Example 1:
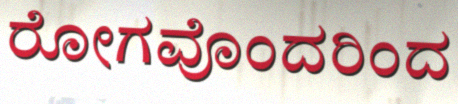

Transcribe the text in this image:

ರೋಗವೊಂದರಿಂದ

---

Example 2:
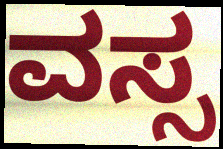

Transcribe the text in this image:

ವಸ್ಸ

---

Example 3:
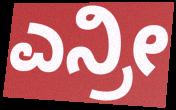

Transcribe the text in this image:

ಎನ್ರೀ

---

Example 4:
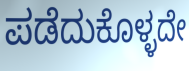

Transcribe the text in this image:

ಪಡೆದುಕೊಳ್ಳದೇ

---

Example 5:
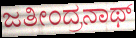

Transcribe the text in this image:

ಜತೀಂದ್ರನಾಥ್